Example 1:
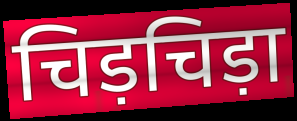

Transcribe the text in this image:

चिड़चिड़ा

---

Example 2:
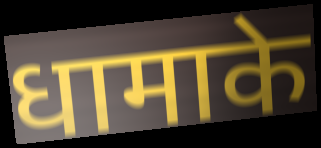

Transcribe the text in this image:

धामाके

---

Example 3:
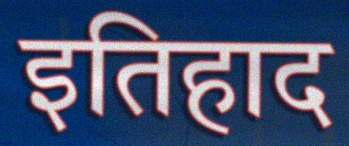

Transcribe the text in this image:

इतिहाद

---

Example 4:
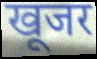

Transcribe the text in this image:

खूजर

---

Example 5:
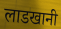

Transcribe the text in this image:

लाडखानी